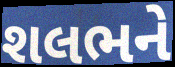
શલભને